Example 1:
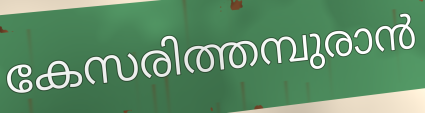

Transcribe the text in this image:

കേസരിത്തമ്പുരാൻ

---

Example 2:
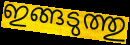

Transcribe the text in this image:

ഇങ്ങടുത്തു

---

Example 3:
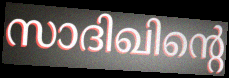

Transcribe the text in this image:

സാദിഖിന്റെ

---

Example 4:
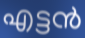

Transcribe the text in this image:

എട്ടൻ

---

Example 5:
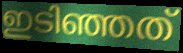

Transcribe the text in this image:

ഇടിഞ്ഞത്